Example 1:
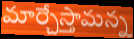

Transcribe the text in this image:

మార్చేస్తామన్న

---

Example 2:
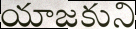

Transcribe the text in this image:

యాజకుని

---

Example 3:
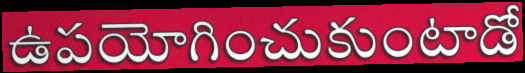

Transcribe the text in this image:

ఉపయోగించుకుంటాడో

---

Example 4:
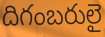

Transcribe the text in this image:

దిగంబరులై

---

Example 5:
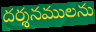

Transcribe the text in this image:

దర్శనములను